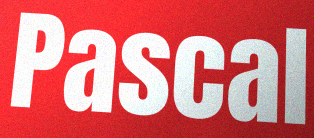
Pascal